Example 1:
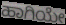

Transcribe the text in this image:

ಹಾಗಿಯೇ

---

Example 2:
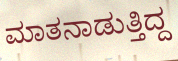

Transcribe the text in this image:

ಮಾತನಾಡುತ್ತಿದ್ದ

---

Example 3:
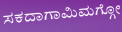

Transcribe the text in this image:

ಸಕದಾಗಾಮಿಮಗ್ಗೋ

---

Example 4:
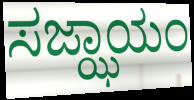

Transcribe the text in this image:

ಸಜ್ಝಾಯಂ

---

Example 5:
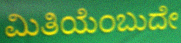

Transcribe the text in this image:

ಮಿತಿಯೆಂಬುದೇ